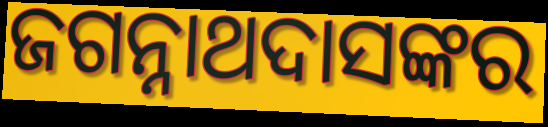
ଜଗନ୍ନାଥଦାସଙ୍କର